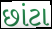
છાંટા